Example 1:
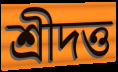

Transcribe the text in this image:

শ্রীদত্ত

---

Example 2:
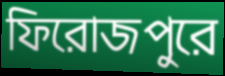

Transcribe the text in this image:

ফিরোজপুরে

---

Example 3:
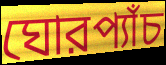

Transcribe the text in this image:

ঘোরপ্যাঁচ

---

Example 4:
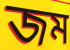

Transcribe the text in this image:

জম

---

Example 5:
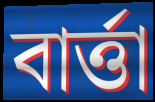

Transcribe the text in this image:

বার্ত্তা